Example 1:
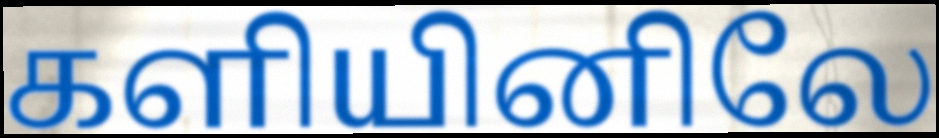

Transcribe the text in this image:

களியினிலே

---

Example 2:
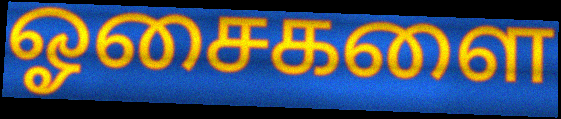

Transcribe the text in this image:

ஓசைகளை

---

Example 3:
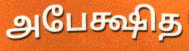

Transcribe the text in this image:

அபேக்ஷித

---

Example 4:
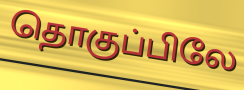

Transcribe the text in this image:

தொகுப்பிலே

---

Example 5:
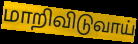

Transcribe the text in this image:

மாறிவிடுவாய்